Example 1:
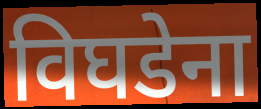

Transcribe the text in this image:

विघडेना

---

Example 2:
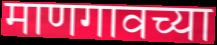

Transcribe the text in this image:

माणगावच्या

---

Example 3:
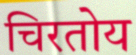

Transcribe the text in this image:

चिरतोय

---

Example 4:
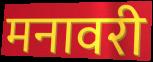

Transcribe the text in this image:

मनावरी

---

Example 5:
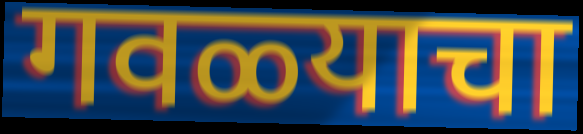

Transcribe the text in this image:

गवळ्याचा